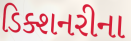
ડિક્શનરીના